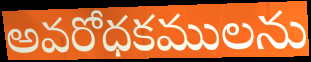
అవరోధకములను